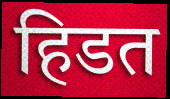
हिडत